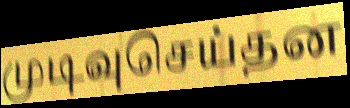
முடிவுசெய்தன